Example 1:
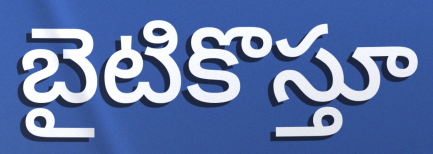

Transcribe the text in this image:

బైటికొస్తూ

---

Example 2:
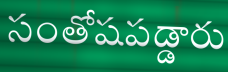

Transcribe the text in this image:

సంతోషపడ్డారు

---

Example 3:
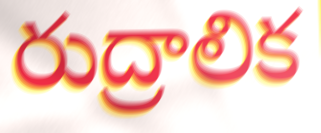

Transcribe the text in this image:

రుద్రాలిక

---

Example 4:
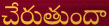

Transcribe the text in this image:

చేరుతుందా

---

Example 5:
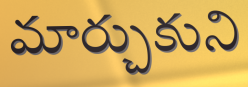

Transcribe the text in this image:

మార్చుకుని